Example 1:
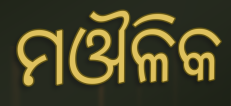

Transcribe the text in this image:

ମଔଳିକ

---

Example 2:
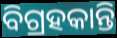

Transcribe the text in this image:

ବିଗ୍ରହକାନ୍ତି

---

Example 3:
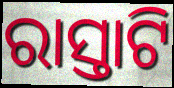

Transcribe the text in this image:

ରାସ୍ତାଟି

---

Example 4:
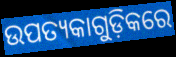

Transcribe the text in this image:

ଉପତ୍ୟକାଗୁଡ଼ିକରେ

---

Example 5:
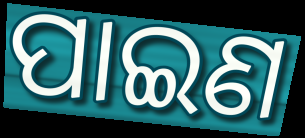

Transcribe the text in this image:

ପାଇଣ